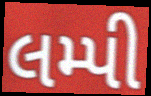
લમ્પી